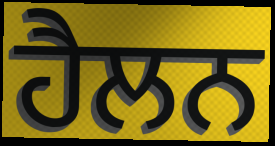
ਹੈਲਨ